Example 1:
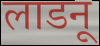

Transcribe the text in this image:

लाडनू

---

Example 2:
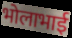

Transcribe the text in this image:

भोलाभाई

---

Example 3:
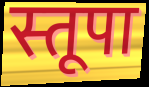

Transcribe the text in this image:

स्तूपा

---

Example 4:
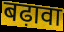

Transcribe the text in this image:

बढ़ावा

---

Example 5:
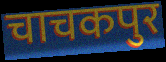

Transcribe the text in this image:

चाचकपुर